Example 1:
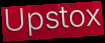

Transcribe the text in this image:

Upstox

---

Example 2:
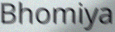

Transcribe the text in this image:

Bhomiya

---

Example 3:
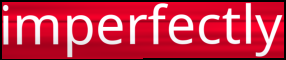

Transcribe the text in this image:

imperfectly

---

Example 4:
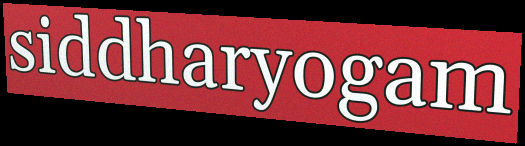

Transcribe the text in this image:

siddharyogam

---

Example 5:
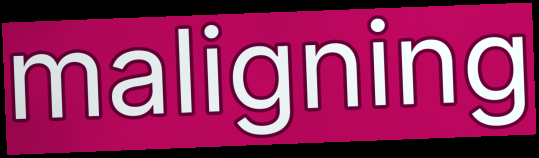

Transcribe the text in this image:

maligning